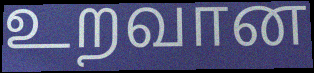
உறவான